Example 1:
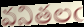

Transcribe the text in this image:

వనితలఁ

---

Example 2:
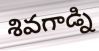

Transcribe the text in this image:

శివగాడ్ని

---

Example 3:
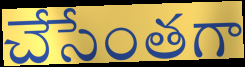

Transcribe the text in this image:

చేసేంతగా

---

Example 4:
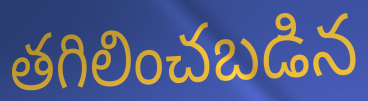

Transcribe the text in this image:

తగిలించబడిన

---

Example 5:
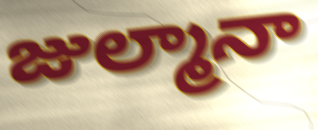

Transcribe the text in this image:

జుల్మానా